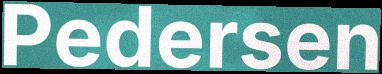
Pedersen